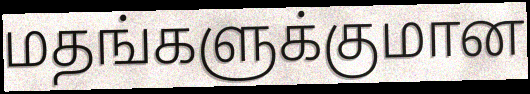
மதங்களுக்குமான